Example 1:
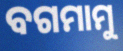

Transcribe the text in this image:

ବଗମାମୁ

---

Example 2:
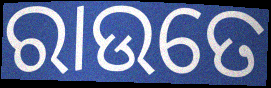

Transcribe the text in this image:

ରାଉତେ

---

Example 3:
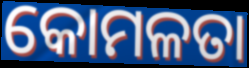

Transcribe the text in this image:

କୋମଳତା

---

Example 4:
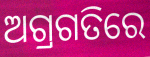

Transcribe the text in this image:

ଅଗ୍ରଗତିରେ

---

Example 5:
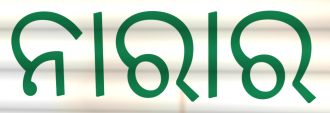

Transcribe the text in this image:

ନାରାର